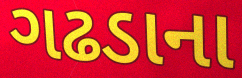
ગઢડાના